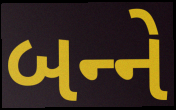
બન્‍ને